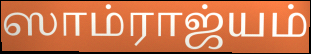
ஸாம்ராஜ்யம்